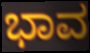
ಭಾವ